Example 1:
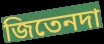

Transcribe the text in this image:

জিতেনদা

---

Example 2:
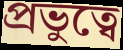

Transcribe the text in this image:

প্রভুত্বে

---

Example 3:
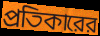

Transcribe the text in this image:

প্রতিকারের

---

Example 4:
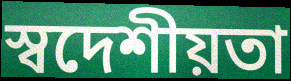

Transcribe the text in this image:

স্বদেশীয়তা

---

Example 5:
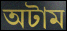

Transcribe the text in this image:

অটাম